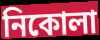
নিকোলা